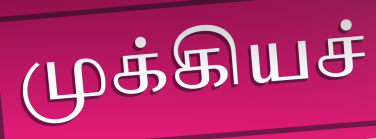
முக்கியச்